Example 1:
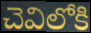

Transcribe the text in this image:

చెవిలోకి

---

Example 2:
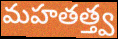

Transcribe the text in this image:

మహతత్త్వ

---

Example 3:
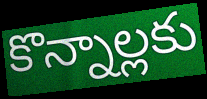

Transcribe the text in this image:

కొన్నాల్లకు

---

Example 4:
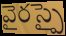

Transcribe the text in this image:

వైరస్పై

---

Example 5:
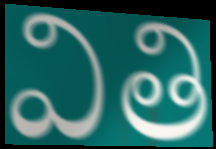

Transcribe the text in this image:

వితి